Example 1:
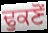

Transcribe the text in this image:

ਢੁਕਣੋਂ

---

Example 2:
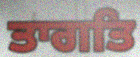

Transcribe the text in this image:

ਤਾਗਤਿ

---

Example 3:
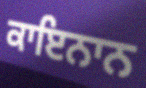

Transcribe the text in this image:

ਕਾਇਨਾਨ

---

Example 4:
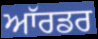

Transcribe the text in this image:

ਆੱਰਡਰ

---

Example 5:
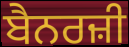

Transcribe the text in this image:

ਬੈਨਰਜ਼ੀ